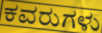
ಕವರುಗಳು